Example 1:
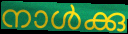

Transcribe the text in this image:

നാൾക്കു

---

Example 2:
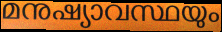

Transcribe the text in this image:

മനുഷ്യാവസ്ഥയും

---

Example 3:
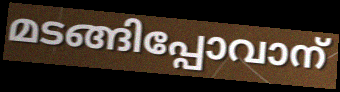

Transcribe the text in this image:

മടങ്ങിപ്പോവാന്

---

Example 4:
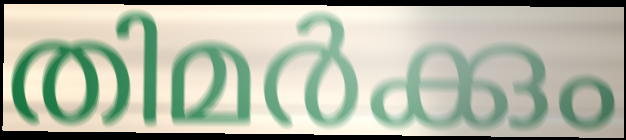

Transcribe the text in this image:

തിമർക്കും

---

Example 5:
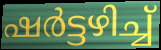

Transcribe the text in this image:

ഷർട്ടഴിച്ച്